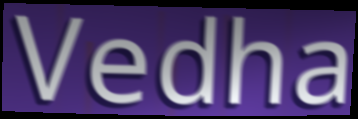
Vedha